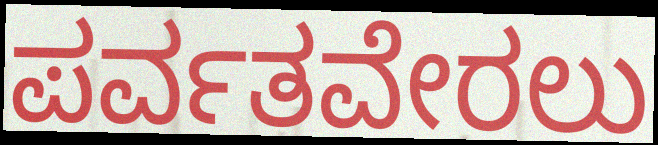
ಪರ್ವತವೇರಲು